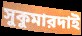
সুকুমারদাই